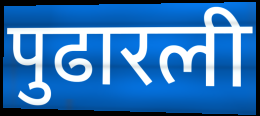
पुढारली